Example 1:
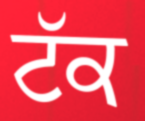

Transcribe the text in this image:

ਟੱਕ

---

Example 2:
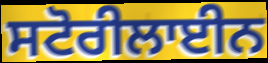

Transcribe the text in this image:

ਸਟੋਰੀਲਾਈਨ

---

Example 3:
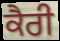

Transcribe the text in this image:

ਕੈਰੀ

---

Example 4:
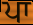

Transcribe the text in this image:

ਪਾ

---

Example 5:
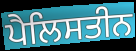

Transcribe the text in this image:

ਪੈਲਿਸਤੀਨ